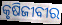
କୃଷିଜୀବୀର